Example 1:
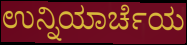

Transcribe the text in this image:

ಉನ್ನಿಯಾರ್ಚೆಯ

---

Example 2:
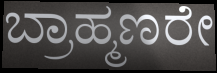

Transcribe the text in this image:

ಬ್ರಾಹ್ಮಣರೇ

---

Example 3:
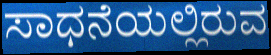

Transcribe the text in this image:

ಸಾಧನೆಯಲ್ಲಿರುವ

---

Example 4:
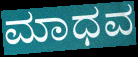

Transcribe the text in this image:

ಮಾಧವ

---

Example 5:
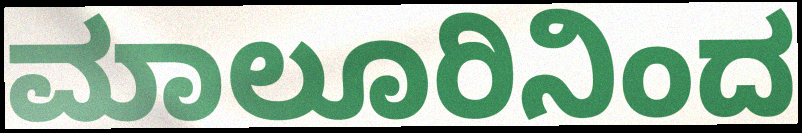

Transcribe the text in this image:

ಮಾಲೂರಿನಿಂದ